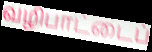
வழிபாட்டைப்